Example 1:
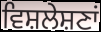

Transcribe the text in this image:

ਵਿਸ਼ਲੇਸ਼ਣਾਂ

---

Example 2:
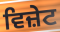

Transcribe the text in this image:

ਵਿਜ਼ੇਟ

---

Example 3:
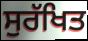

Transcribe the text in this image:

ਸੁਰੱਖਿਤ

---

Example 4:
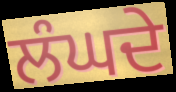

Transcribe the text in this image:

ਲੰਘਦੇ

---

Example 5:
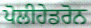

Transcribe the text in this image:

ਪੋਲੀਹੇਡਰੋਨ